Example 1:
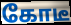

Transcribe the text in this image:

கோடீ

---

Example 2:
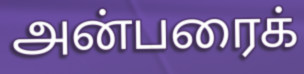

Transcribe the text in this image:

அன்பரைக்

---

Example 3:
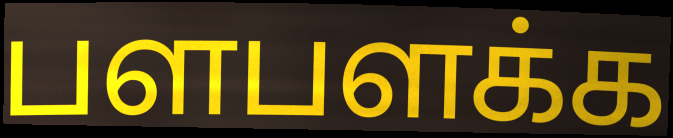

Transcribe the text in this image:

பளபளக்க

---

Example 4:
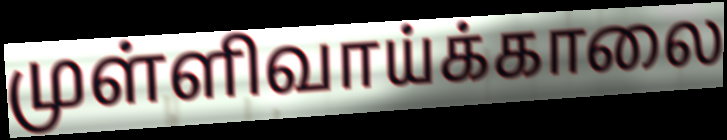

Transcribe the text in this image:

முள்ளிவாய்க்காலை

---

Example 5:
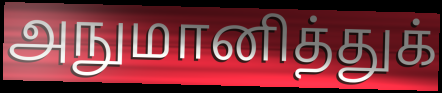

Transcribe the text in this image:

அநுமானித்துக்